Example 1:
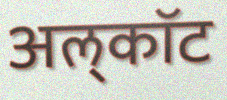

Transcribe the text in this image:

अल्कॉट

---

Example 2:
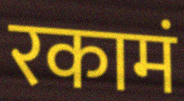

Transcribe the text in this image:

रकामं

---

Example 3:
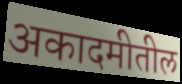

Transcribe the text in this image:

अकादमीतील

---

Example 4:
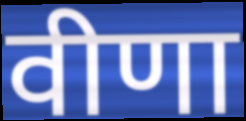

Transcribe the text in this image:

वीणा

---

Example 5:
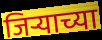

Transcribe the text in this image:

जिऱ्याच्या